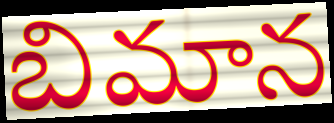
బిమాన